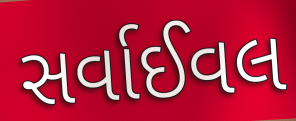
સર્વાઈવલ